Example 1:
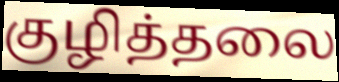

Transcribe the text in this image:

குழித்தலை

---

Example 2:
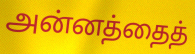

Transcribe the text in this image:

அன்னத்தைத்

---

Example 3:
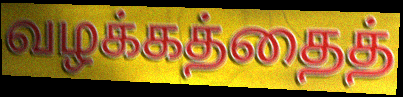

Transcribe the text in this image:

வழக்கத்தைத்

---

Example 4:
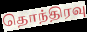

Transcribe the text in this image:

தொந்திரவு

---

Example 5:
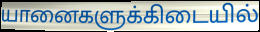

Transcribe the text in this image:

யானைகளுக்கிடையில்